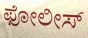
ಫೋಲೀಸ್